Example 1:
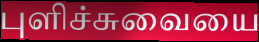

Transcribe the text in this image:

புளிச்சுவையை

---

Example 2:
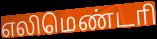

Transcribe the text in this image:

எலிமெண்டரி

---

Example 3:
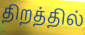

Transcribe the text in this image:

திறத்தில்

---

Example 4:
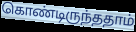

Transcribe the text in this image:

கொண்டிருந்ததாம்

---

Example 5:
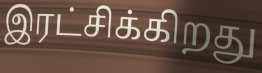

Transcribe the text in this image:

இரட்சிக்கிறது